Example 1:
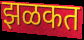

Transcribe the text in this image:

झळकत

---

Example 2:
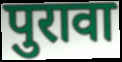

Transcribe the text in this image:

पुरावा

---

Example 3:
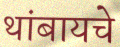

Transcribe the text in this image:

थांबायचे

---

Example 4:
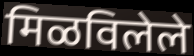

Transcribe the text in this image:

मिळविलेले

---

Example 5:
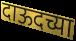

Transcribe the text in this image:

दाऊदच्या